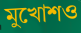
মুখোশও